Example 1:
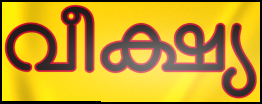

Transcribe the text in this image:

വീക്ഷ്യ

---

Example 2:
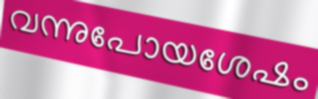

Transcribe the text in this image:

വന്നുപോയശേഷം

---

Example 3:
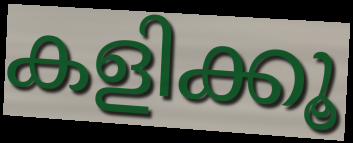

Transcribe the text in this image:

കളിക്കൂ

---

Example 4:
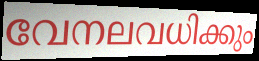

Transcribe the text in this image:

വേനലവധിക്കും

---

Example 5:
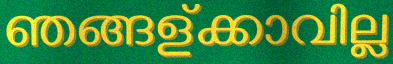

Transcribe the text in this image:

ഞങ്ങള്ക്കാവില്ല